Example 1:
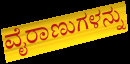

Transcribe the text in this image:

ವೈರಾಣುಗಳನ್ನು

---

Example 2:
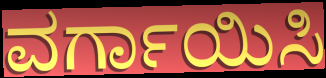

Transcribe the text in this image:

ವರ್ಗಾಯಿಸಿ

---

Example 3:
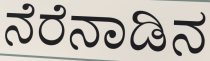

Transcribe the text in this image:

ನೆರೆನಾಡಿನ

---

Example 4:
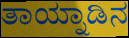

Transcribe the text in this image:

ತಾಯ್ನಾಡಿನ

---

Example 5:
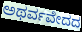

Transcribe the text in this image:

ಅಥರ್ವವೇದದ